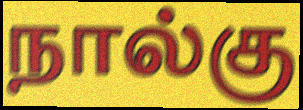
நால்கு